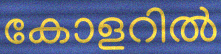
കോളറിൽ